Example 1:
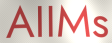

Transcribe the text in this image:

AIIMs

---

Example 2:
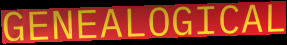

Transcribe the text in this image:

GENEALOGICAL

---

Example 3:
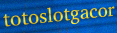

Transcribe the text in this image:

totoslotgacor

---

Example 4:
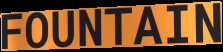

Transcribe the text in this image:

FOUNTAIN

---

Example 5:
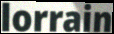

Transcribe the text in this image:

lorrain